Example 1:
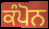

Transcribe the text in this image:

ਕੰਪੋਨ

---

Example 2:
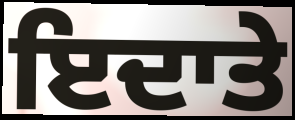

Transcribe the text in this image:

ਇਦਾਤੇ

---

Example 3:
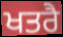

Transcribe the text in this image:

ਖਤਰੈ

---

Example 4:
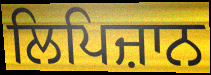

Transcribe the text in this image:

ਲਿਪਿਜ਼ਾਨ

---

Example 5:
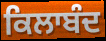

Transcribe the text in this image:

ਕਿਲਾਬੰਦ